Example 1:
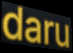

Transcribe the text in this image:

daru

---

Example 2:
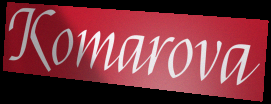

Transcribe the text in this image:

Komarova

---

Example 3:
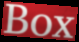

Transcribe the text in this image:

Box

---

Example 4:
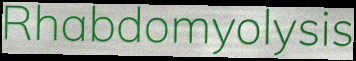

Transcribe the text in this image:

Rhabdomyolysis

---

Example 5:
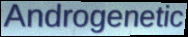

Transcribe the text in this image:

Androgenetic